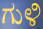
ಗುಳಿ